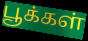
பூக்கள்